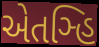
એતઞ્હિ